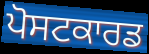
ਪੋਸਟਕਾਰਡ